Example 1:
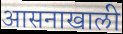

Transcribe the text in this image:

आसनाखाली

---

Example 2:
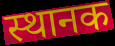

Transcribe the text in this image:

स्थानक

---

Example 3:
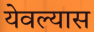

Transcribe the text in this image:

येवल्यास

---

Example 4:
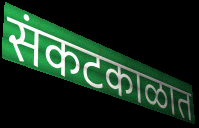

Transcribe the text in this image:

संकटकाळात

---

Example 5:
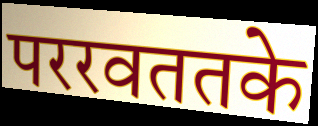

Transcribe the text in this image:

पररवततके